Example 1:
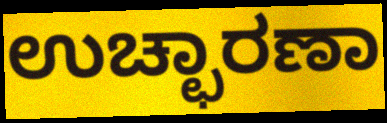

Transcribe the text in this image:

ಉಚ್ಛಾರಣಾ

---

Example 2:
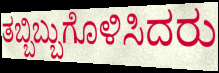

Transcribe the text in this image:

ತಬ್ಬಿಬ್ಬುಗೊಳಿಸಿದರು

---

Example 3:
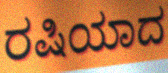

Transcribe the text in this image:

ರಷಿಯಾದ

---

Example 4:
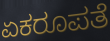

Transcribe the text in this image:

ಏಕರೂಪತೆ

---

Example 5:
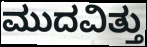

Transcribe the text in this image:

ಮುದವಿತ್ತು